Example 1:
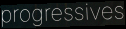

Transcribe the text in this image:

progressives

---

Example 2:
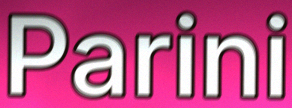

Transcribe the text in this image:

Parini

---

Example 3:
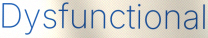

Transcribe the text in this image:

Dysfunctional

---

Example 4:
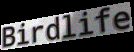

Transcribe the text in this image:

Birdlife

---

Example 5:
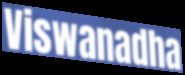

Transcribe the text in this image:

Viswanadha